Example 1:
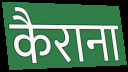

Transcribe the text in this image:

कैराना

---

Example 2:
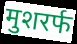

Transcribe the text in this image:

मुशरर्फ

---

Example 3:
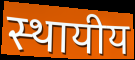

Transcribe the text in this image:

स्थायीय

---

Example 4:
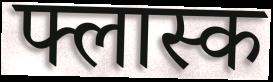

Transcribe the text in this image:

फ्लास्क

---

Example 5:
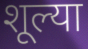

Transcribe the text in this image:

शूल्या